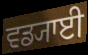
ਵਡ੍ਯਾਈ